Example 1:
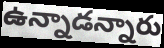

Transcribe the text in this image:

ఉన్నాడన్నారు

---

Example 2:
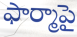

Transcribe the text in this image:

ఫార్మాపై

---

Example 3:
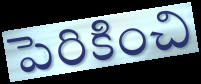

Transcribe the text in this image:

పెరికించి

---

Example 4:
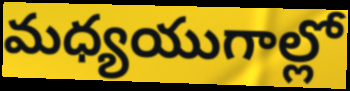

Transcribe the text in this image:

మధ్యయుగాల్లో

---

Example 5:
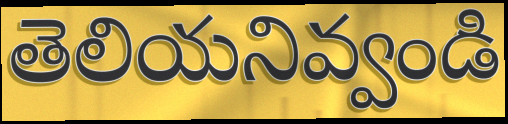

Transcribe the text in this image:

తెలియనివ్వండి